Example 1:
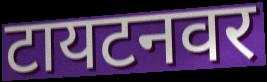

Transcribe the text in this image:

टायटनवर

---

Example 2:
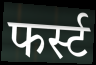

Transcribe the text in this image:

फर्स्ट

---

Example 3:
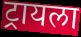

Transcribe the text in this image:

ट्रायला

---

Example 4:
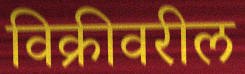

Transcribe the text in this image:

विक्रीवरील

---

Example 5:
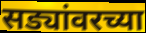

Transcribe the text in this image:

सड्यांवरच्या